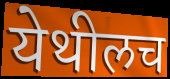
येथीलच